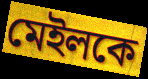
মেইলকে